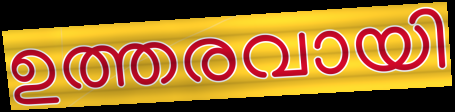
ഉത്തരവായി